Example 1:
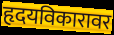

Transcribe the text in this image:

हृदयविकारावर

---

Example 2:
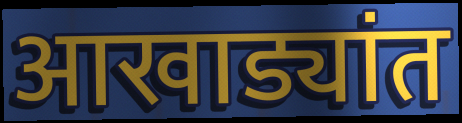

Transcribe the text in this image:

आखाड्यांत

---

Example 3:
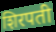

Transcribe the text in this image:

शिरपती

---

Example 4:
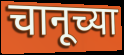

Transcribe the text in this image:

चानूच्या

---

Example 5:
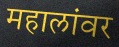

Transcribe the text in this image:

महालांवर